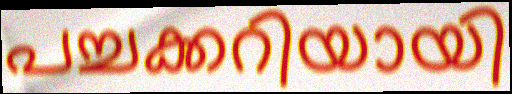
പച്ചക്കറിയായി